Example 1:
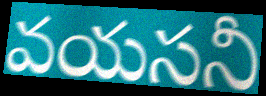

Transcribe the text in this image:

వయసనీ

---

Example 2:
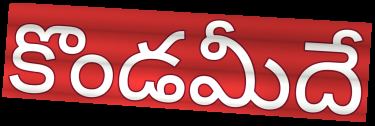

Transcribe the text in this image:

కొండమీదే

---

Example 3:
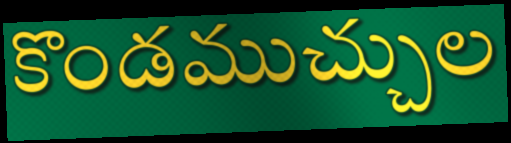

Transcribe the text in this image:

కొండముచ్చుల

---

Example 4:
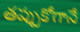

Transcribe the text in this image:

తప్పుకోగానే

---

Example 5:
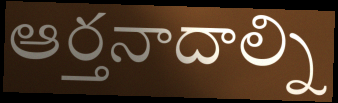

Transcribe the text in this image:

ఆర్తనాదాల్ని